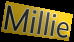
Millie